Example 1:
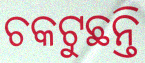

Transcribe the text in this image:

ଚକଟୁଛନ୍ତି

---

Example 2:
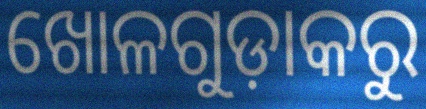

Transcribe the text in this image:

ଖୋଳଗୁଡ଼ାକରୁ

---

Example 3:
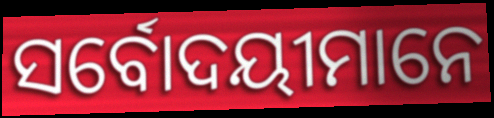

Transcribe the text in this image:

ସର୍ବୋଦୟୀମାନେ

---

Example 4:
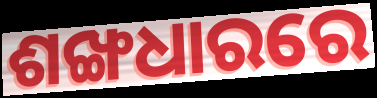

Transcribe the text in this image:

ଶଙ୍ଖଧାରରେ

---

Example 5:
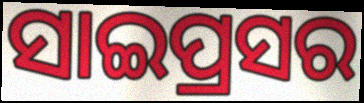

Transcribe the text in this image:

ସାଇପ୍ରସର